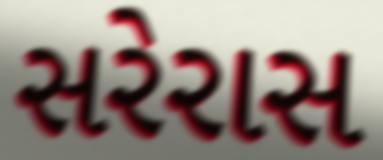
સરેરાસ